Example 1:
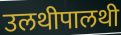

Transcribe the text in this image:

उलथीपालथी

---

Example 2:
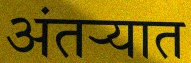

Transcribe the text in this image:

अंतऱ्यात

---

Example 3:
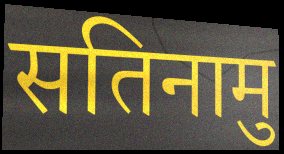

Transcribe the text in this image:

सतिनामु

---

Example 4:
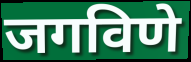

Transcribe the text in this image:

जगविणे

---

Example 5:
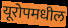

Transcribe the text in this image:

यूरोपमधील